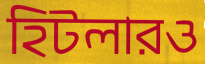
হিটলারও